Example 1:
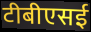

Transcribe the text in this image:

टीबीएसई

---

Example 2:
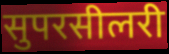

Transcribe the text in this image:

सुपरसीलरी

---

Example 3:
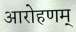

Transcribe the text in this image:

आरोहणम्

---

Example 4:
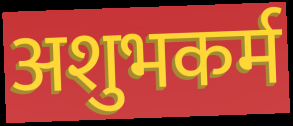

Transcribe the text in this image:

अशुभकर्म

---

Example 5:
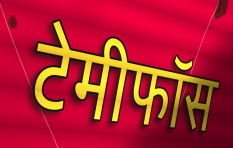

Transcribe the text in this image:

टेमीफॉस